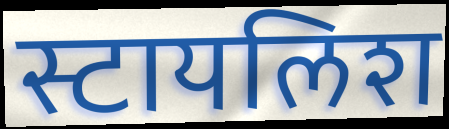
स्टायलिश